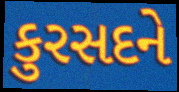
કુરસદને